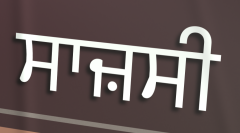
ਸਾਜ਼ਸੀ